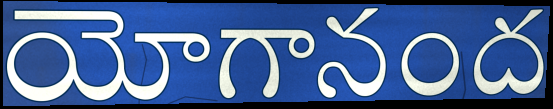
యోగానంద